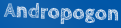
Andropogon